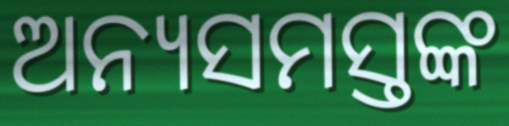
ଅନ୍ୟସମସ୍ତଙ୍କ